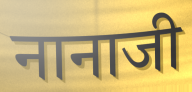
नानाजी